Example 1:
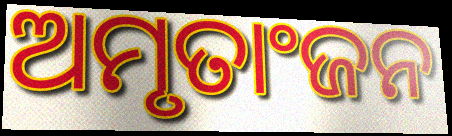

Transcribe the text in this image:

ଅମୃତାଂଜନ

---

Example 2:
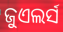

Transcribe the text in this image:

ଜୁଏଲର୍ସ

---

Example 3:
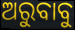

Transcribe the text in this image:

ଅରୁବାବୁ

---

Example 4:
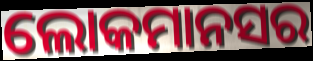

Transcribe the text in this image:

ଲୋକମାନସର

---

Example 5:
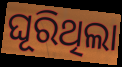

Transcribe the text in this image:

ଘୂରିଥିଲା